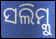
ସଲିମ୍କୁ